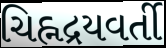
ચિહ્નદ્રયવર્તી